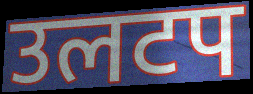
उलटप